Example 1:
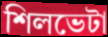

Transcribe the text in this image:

শিলভেটা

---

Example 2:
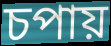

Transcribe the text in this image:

চপায়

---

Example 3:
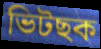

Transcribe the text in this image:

ভিটছক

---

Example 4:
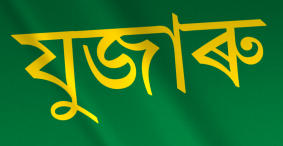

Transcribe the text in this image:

যুজাৰু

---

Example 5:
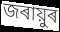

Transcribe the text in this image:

জৰায়ুৰ